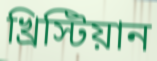
খ্রিস্টিয়ান